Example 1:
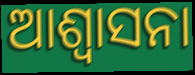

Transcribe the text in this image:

ଆଶ୍ୱାସନା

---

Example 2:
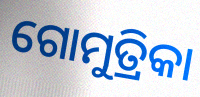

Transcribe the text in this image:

ଗୋମୁତ୍ରିକା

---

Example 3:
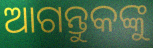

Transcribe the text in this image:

ଆଗନ୍ତୁକଙ୍କୁ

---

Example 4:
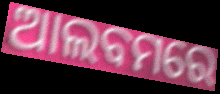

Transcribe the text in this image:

ଆଲବମରେ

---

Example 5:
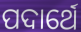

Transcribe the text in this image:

ପଦାର୍ଥେ